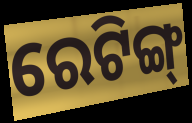
ରେଟିଙ୍ଗ୍